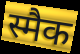
स्मैक